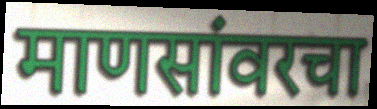
माणसांवरचा